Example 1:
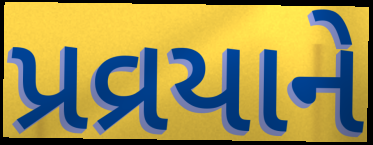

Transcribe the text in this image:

પ્રવ્રયાને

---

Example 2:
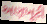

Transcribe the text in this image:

અણખૂટી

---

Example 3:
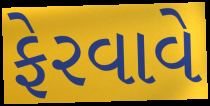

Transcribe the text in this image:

ફેરવાવે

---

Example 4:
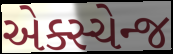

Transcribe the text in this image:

એક્સ્ચેન્જ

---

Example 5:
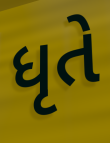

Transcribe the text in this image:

ધૃતે